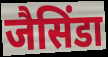
जैसिंडा